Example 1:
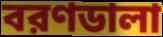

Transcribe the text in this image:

বরণডালা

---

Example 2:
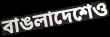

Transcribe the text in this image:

বাঙলাদেশেও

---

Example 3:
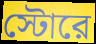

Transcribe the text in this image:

স্টোরে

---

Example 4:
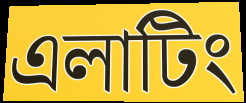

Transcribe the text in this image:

এলাটিং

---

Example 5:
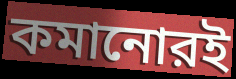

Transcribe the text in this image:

কমানোরই